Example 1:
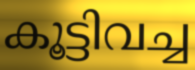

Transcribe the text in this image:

കൂട്ടിവച്ച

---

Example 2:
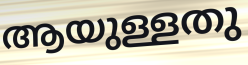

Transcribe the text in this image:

ആയുള്ളതു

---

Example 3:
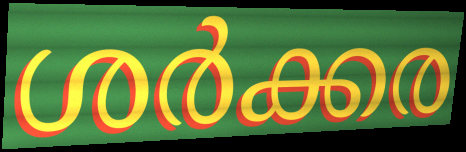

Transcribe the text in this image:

ശർക്കര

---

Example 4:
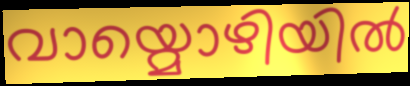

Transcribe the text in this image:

വായ്മൊഴിയിൽ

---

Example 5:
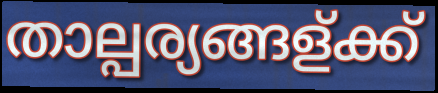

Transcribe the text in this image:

താല്പര്യങ്ങള്ക്ക്